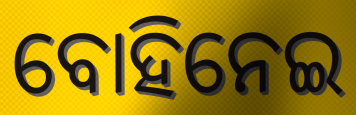
ବୋହିନେଇ